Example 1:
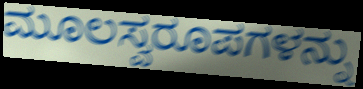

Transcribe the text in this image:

ಮೂಲಸ್ವರೂಪಗಳನ್ನು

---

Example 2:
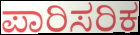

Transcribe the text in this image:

ಪಾರಿಸರಿಕ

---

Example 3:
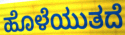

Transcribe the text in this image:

ಹೊಳೆಯುತದೆ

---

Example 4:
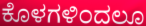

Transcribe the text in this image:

ಕೊಳಗಳಿಂದಲೂ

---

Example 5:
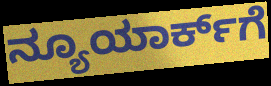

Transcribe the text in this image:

ನ್ಯೂಯಾರ್ಕ್‌ಗೆ